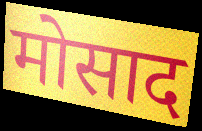
मोसाद